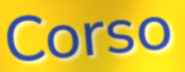
Corso